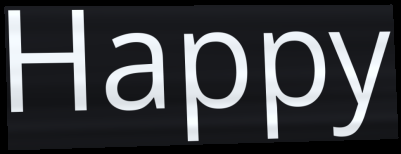
Happy